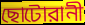
ছোটোরানী